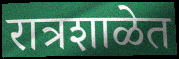
रात्रशाळेत